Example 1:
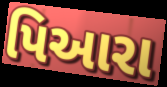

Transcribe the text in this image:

પિઆરા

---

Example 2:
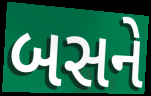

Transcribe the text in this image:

બસને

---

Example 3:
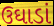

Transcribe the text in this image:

ઉઘાડાં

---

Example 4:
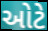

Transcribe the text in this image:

ઓટે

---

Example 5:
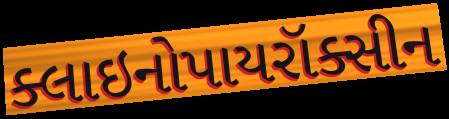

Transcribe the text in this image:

ક્લાઇનોપાયરૉક્સીન